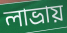
লাভ্ৰায়